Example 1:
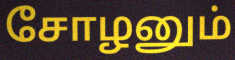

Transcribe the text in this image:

சோழனும்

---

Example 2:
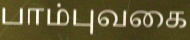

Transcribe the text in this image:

பாம்புவகை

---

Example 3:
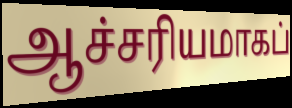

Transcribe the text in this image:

ஆச்சரியமாகப்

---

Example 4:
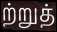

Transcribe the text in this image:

ற்றுத்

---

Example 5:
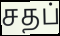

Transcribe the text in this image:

சதப்